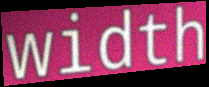
width